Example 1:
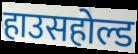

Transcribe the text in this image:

हाउसहोल्ड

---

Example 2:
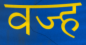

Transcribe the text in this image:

वज्ह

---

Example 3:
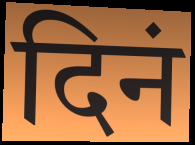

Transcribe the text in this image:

दिनं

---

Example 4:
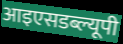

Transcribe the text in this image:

आइएसडब्ल्यूपी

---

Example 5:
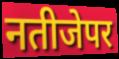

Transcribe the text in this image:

नतीजेपर